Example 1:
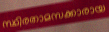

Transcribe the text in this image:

സ്ഥിരതാമസക്കാരായ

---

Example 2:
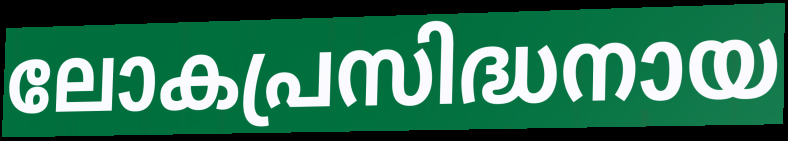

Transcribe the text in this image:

ലോകപ്രസിദ്ധനായ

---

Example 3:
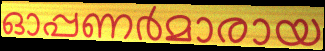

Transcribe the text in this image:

ഓപ്പണർമാരായ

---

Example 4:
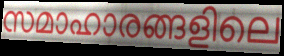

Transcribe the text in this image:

സമാഹാരങ്ങളിലെ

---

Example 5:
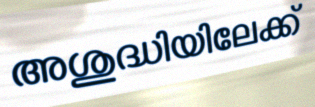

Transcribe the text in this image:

അശുദ്ധിയിലേക്ക്